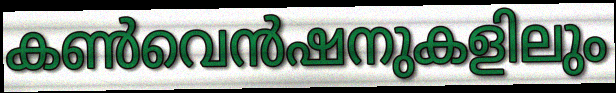
കൺവെൻഷനുകളിലും